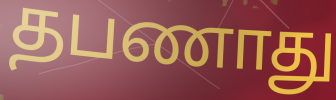
தபணாது